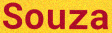
Souza